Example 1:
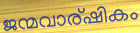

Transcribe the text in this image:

ജന്മവാര്ഷികം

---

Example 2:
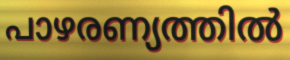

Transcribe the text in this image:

പാഴരണ്യത്തിൽ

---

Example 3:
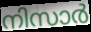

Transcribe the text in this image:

നിസാർ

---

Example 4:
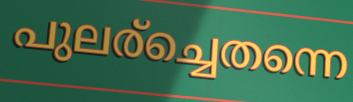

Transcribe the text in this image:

പുലര്ച്ചെതന്നെ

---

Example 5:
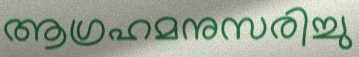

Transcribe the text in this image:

ആഗ്രഹമനുസരിച്ചു